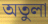
অতুলা